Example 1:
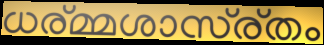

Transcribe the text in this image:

ധര്മ്മശാസ്ര്തം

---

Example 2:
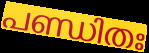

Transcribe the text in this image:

പണ്ഡിതഃ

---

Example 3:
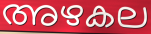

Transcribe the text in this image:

അഴകല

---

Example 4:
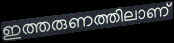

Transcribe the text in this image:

ഇത്തരുണത്തിലാണ്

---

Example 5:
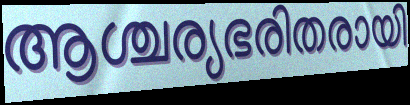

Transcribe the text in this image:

ആശ്ചര്യഭരിതരായി